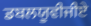
ਡਬਲਯੂਵੀਜੀਏ